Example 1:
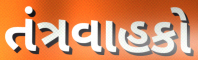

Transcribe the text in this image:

તંત્રવાહકો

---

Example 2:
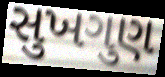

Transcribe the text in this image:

સુખગુણ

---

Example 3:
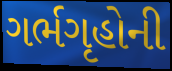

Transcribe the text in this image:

ગર્ભગૃહોની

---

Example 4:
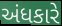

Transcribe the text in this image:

અંધકારે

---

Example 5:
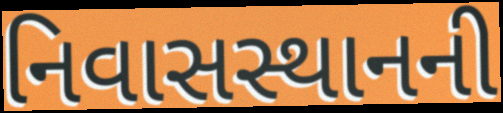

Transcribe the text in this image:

નિવાસસ્થાનની